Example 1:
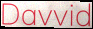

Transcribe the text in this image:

Davvid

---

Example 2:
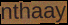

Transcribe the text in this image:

nthaay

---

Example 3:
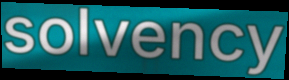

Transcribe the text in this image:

solvency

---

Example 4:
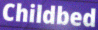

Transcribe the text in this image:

Childbed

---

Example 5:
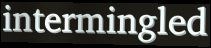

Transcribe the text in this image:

intermingled